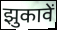
झुकावें